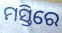
ମସ୍ତିରେ